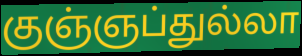
குஞ்ஞப்துல்லா